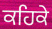
ਕਹਿਕੇ